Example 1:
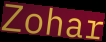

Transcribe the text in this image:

Zohar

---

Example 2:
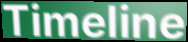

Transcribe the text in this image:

Timeline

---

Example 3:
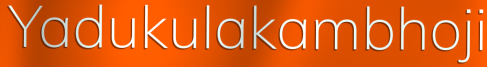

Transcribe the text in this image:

Yadukulakambhoji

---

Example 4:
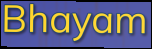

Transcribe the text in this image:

Bhayam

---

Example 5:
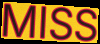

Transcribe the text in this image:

MISS